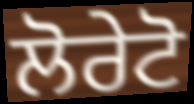
ਲੋਰੇਟੋ